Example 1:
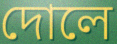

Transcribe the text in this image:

দোলে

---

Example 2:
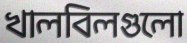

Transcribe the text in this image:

খালবিলগুলো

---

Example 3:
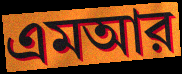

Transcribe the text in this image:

এমআর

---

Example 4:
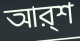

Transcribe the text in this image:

আর্‌শ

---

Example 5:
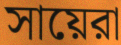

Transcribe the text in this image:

সায়েরা